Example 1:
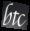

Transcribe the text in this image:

btc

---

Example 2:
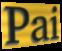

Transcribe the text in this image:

Pai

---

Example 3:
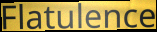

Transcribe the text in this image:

Flatulence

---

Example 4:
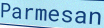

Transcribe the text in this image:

Parmesan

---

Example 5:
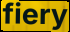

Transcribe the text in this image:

fiery